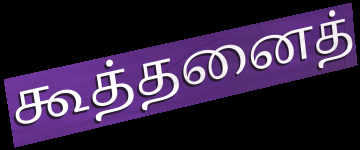
கூத்தனைத்